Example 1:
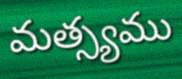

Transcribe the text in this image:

మత్స్యము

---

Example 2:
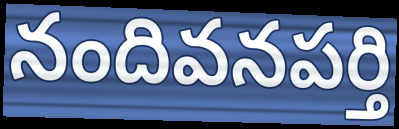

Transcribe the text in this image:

నందివనపర్తి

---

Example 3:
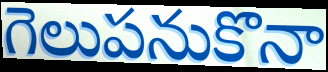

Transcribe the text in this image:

గెలుపనుకొనా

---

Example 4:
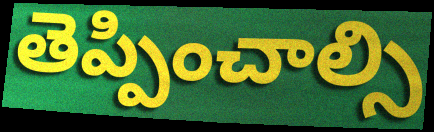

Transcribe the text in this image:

తెప్పించాల్సి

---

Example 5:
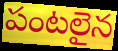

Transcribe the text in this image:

పంటలైన